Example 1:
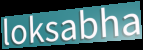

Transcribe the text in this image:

loksabha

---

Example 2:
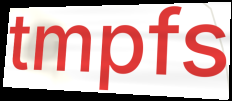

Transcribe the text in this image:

tmpfs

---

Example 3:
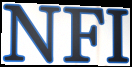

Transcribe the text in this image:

NFI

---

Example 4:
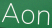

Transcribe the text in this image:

Aon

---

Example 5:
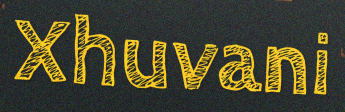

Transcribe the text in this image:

Xhuvani